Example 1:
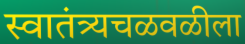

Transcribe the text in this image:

स्वातंत्र्यचळवळीला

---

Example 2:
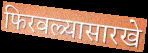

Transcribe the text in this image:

फिरवल्यासारखे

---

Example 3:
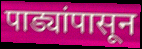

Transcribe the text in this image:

पाड्यांपासून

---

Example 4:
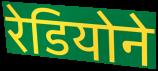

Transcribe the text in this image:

रेडियोने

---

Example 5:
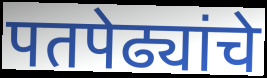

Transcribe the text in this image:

पतपेढ्यांचे